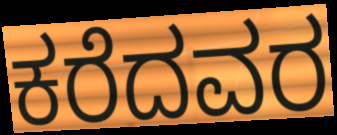
ಕರೆದವರ